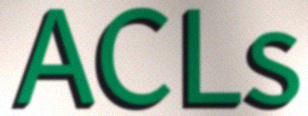
ACLs